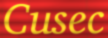
Cusec